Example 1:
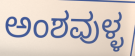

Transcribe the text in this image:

ಅಂಶವುಳ್ಳ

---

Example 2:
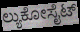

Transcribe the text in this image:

ಲ್ಯುಕೋಸೈಟ್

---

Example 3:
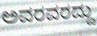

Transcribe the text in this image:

ಅವರವರದ್ದು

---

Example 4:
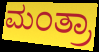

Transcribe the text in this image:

ಮಂತ್ರಾ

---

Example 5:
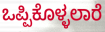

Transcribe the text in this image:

ಒಪ್ಪಿಕೊಳ್ಳಲಾರೆ